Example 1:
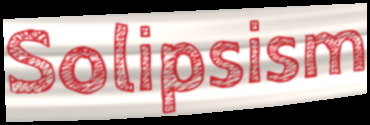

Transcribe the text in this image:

Solipsism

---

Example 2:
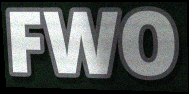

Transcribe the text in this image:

FWO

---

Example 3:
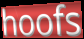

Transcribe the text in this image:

hoofs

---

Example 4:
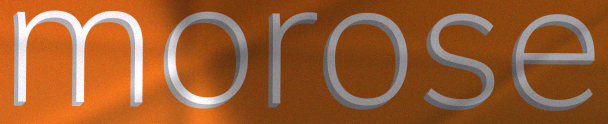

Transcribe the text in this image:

morose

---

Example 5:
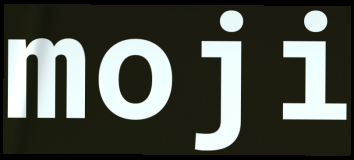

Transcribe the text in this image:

moji